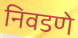
निवडणे